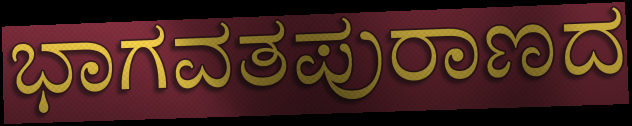
ಭಾಗವತಪುರಾಣದ